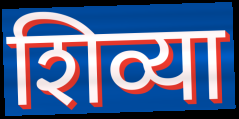
शिव्या